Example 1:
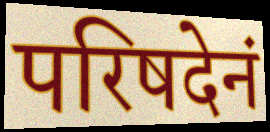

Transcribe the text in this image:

परिषदेनं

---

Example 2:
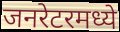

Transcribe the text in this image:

जनरेटरमध्ये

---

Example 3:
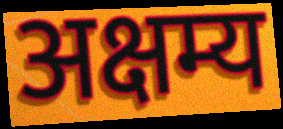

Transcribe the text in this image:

अक्षम्य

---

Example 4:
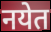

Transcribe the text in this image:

नयेत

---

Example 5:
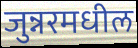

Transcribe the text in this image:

जुन्नरमधील